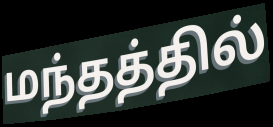
மந்தத்தில்